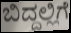
ಬಿದ್ದಲ್ಲಿಗೆ